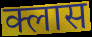
क्लास